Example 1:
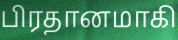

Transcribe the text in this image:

பிரதானமாகி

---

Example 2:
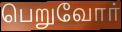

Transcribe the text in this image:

பெறுவோர்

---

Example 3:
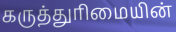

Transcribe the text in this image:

கருத்துரிமையின்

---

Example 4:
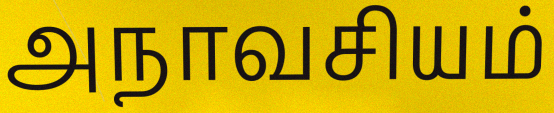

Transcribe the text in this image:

அநாவசியம்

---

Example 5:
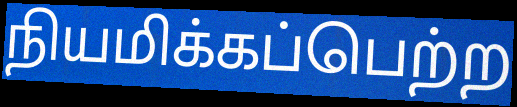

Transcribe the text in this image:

நியமிக்கப்பெற்ற